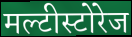
मल्टीस्टोरेज